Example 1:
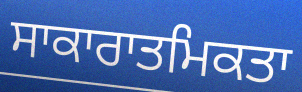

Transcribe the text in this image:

ਸਾਕਾਰਾਤਮਿਕਤਾ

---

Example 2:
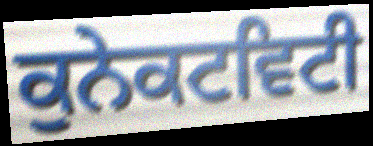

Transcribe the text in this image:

ਕੁਨੇਕਟਵਿਟੀ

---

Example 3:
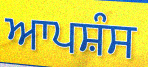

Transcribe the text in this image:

ਆਪਸ਼ੰਸ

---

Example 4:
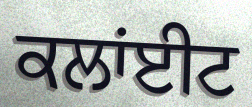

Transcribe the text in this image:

ਕਲਾਂਈਟ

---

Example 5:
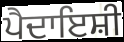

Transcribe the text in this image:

ਪੈਦਾਇਸ਼ੀ